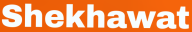
Shekhawat